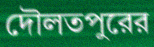
দৌলতপুরের